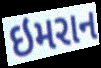
ઇમરાન